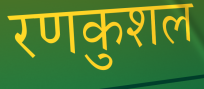
रणकुशल